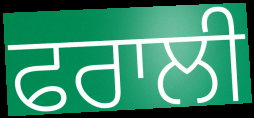
ਫਰਾਲੀ